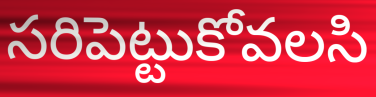
సరిపెట్టుకోవలసి